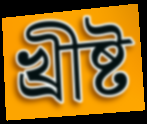
খ্রীষ্ট